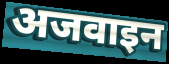
अजवाइन